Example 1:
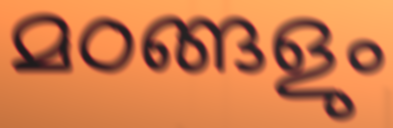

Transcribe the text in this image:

മഠങ്ങളും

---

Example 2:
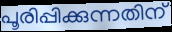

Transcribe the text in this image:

പൂരിപ്പിക്കുന്നതിന്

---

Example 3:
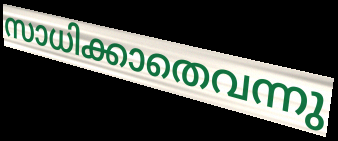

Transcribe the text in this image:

സാധിക്കാതെവന്നു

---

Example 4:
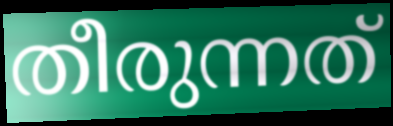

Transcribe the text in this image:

തീരുന്നത്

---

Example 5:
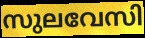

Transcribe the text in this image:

സുലവേസി